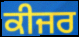
ਕੀਜਰ